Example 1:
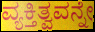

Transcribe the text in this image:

ವ್ಯಕ್ತಿತ್ವವನ್ನೇ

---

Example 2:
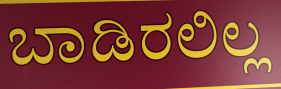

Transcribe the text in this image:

ಬಾಡಿರಲಿಲ್ಲ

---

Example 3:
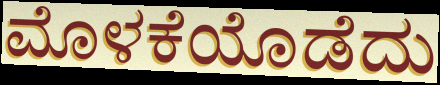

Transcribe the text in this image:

ಮೊಳಕೆಯೊಡೆದು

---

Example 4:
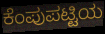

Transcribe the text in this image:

ಕೆಂಪುಪಟ್ಟಿಯ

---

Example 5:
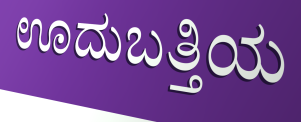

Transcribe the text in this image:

ಊದುಬತ್ತಿಯ